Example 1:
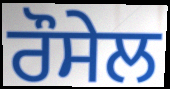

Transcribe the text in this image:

ਰੌਸੇਲ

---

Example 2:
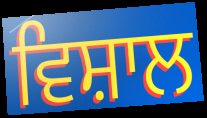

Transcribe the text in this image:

ਵਿਸ਼ਾਲ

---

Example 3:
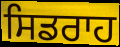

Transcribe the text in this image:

ਸਿਡਰਾਹ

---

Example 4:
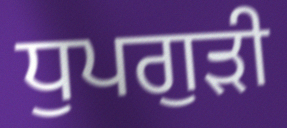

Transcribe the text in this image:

ਧੁਪਗੁੜੀ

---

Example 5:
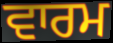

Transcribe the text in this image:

ਵਾਰਮ